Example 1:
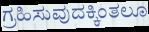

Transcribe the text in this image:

ಗ್ರಹಿಸುವುದಕ್ಕಿಂತಲೂ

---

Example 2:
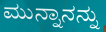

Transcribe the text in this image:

ಮುನ್ನಾನನ್ನು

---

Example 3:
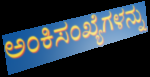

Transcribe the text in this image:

ಅಂಕಿಸಂಖ್ಯೆಗಳನ್ನು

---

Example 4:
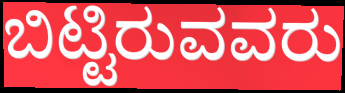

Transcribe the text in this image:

ಬಿಟ್ಟಿರುವವರು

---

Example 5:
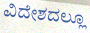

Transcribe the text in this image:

ವಿದೇಶದಲ್ಲೂ